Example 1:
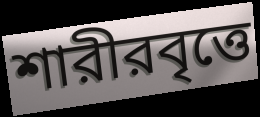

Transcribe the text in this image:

শারীরবৃত্তে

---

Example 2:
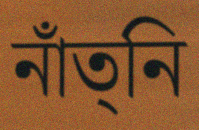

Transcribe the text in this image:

নাঁত্‌নি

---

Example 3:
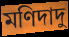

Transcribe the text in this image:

মণিদাদু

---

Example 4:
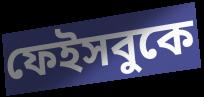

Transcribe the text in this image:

ফেইসবুকে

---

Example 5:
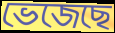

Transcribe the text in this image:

ভেজেছে